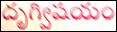
దృగ్విషయం